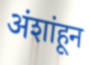
अंशांहून